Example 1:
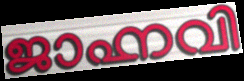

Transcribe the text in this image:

ജാഹ്നവി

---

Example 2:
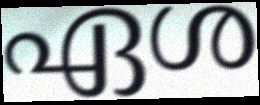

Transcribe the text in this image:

ഏശ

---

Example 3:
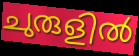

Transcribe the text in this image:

ചുരുളിൽ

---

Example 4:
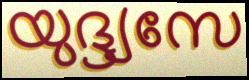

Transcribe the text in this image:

യുദ്ദ്യസേ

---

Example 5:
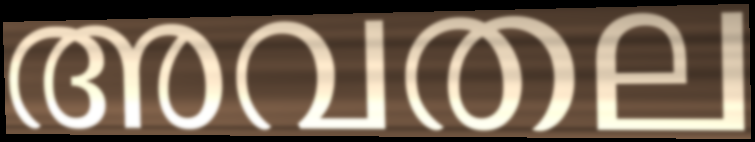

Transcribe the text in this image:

അവതല